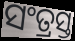
ସଂତ୍ରସ୍ତ